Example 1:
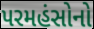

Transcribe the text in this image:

પરમહંસોનો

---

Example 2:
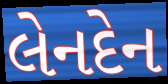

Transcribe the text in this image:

લેનદેન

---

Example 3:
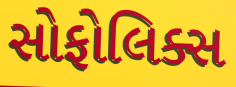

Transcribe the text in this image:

સોફોલિક્સ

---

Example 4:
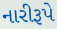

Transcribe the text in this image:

નારીરૂપે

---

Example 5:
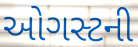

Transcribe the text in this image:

ઓગસ્ટની